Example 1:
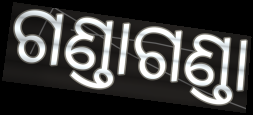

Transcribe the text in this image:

ଗଣ୍ଡାଗଣ୍ଡା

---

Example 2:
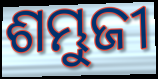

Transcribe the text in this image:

ଶମ୍ଭୁଜୀ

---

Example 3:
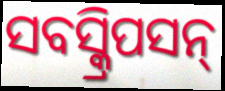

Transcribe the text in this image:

ସବସ୍କ୍ରିପସନ୍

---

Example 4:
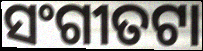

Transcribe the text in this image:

ସଂଗୀତଟା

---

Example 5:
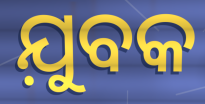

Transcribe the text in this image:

ଯ଼ୁବକ